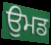
ਉਮਡ